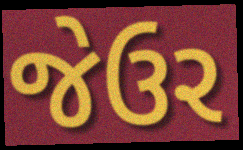
જેઉર